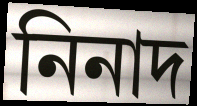
নিনাদ